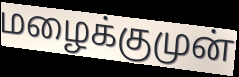
மழைக்குமுன்